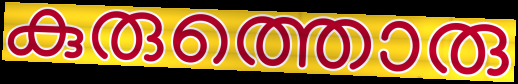
കുരുത്തൊരു